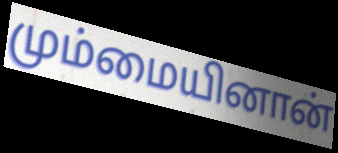
மும்மையினான்